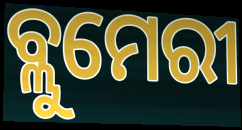
ବ୍ଲୁମେରୀ